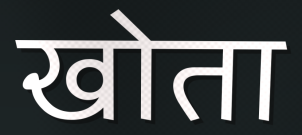
खोता